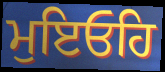
ਮੁਇਓਹਿ